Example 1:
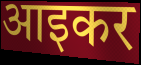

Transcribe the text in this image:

आइकर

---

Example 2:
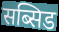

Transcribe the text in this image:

सब्सिड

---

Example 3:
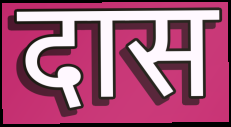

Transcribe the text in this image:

दास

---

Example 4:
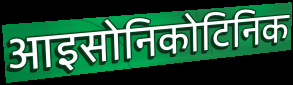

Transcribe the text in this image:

आइसोनिकोटिनिक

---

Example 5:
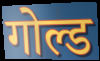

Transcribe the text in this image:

गोल्ड